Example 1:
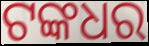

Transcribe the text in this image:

ଟଙ୍କଧର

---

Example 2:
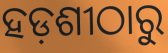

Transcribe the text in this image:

ହଡ଼ଶୀଠାରୁ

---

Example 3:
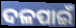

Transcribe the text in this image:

ଦଳପାଇଁ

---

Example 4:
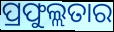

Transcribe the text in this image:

ପ୍ରଫୁଲ୍ଲତାର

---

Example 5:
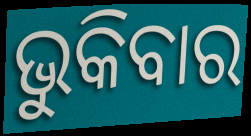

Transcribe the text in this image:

ଭୁକିବାର